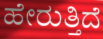
ಹೇರುತ್ತಿದೆ